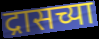
द्रासच्या